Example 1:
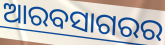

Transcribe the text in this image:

ଆରବସାଗରର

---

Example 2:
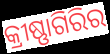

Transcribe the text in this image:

କ୍ରୀଷ୍ଣାଗିରିର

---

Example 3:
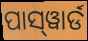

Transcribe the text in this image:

ପାସ୍‌ୱାର୍ଡ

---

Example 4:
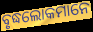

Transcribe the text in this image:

ବୃଦ୍ଧଲୋକମାନେ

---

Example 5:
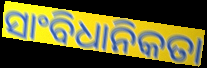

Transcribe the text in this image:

ସାଂବିଧାନିକତା